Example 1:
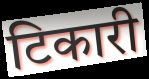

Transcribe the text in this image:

टिकारी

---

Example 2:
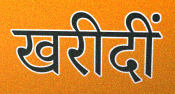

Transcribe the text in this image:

खरीदीं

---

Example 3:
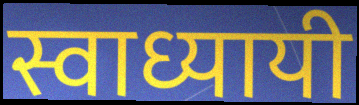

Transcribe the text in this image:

स्वाध्यायी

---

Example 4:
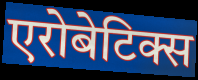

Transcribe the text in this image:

एरोबेटिक्स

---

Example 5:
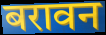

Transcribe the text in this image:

बरावन